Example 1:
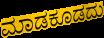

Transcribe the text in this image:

ಮಾಡಕೂಡದು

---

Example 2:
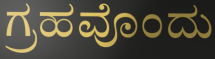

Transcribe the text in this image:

ಗ್ರಹವೊಂದು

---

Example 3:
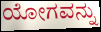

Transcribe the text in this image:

ಯೋಗವನ್ನು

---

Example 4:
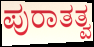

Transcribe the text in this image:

ಪುರಾತತ್ವ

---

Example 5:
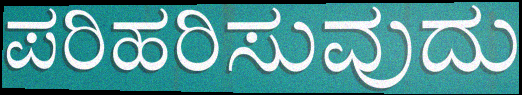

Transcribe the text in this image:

ಪರಿಹರಿಸುವುದು